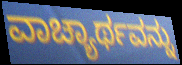
ವಾಚ್ಯಾರ್ಥವನ್ನು